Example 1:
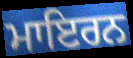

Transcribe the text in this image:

ਮਾਇਰਨ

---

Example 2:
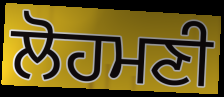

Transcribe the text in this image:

ਲੋਹਮਣੀ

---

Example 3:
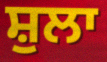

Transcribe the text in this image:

ਸ਼ੁਲਾ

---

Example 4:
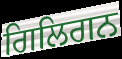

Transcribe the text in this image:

ਗਿਲਿਗਨ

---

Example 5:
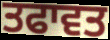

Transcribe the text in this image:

ਤਫਾਵਤ